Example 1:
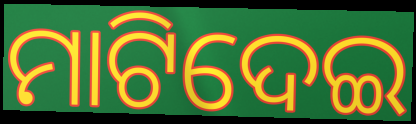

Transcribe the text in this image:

ମାଟିଦେଇ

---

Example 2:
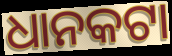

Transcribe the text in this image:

ଧାନକଟା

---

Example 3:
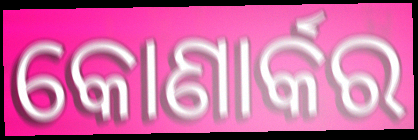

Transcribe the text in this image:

କୋଣାର୍କର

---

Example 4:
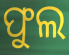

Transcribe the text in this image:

ଫୁଲ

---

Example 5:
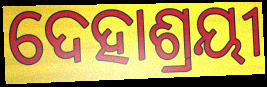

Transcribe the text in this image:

ଦେହାଶ୍ରୟୀ